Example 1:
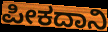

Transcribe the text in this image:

ಪೀಕದಾನಿ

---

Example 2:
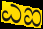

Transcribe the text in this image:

ಎಐ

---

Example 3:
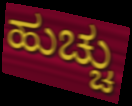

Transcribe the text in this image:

ಹುಚ್ಚು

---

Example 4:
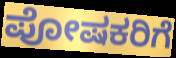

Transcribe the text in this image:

ಪೋಷಕರಿಗೆ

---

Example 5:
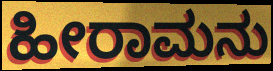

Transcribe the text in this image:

ಹೀರಾಮನು